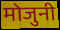
मोजुनी